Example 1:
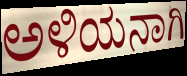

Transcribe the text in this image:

ಅಳಿಯನಾಗಿ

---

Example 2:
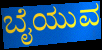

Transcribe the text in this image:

ಬೈಯುವ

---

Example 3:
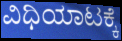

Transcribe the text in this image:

ವಿಧಿಯಾಟಕ್ಕೆ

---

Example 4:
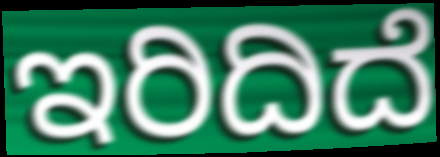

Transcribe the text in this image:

ಇರಿದಿದೆ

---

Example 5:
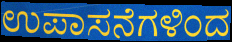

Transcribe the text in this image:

ಉಪಾಸನೆಗಳಿಂದ